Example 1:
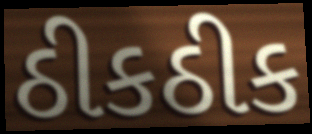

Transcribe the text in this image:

ઠીકઠીક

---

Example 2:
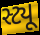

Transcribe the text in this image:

સ્ટ્યૂ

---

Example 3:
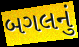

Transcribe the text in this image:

બગલનું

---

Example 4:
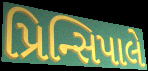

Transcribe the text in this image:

પ્રિન્સિપાલે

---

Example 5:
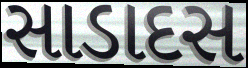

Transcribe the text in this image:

સાડાદસ